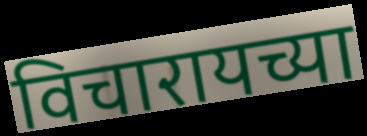
विचारायच्या